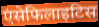
एंसेफिलाइटिस